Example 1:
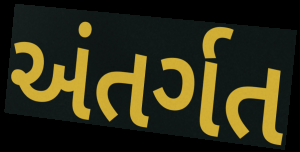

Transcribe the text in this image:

અંતર્ગત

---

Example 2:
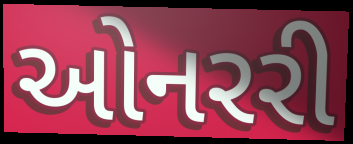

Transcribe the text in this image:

ઓનરરી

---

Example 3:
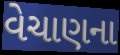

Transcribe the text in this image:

વેચાણના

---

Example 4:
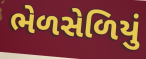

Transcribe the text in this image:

ભેળસેળિયું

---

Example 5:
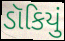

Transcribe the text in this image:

ડૉકિયું